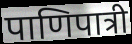
पाणिपात्री